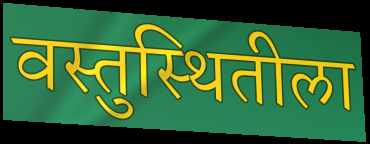
वस्तुस्थितीला